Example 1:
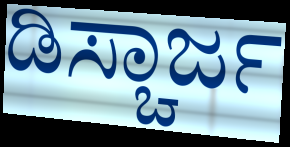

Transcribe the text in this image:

ಡಿಸ್ಚಾರ್ಜ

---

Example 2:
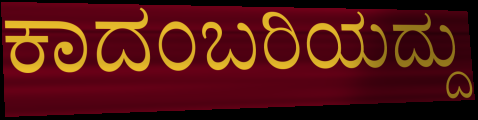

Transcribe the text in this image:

ಕಾದಂಬರಿಯದ್ದು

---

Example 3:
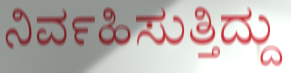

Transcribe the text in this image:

ನಿರ್ವಹಿಸುತ್ತಿದ್ದು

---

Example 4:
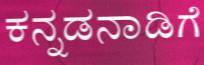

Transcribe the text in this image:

ಕನ್ನಡನಾಡಿಗೆ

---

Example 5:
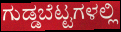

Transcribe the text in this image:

ಗುಡ್ಡಬೆಟ್ಟಗಳಲ್ಲಿ